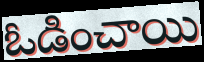
ఓడించాయి